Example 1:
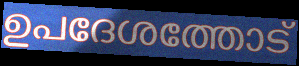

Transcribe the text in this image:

ഉപദേശത്തോട്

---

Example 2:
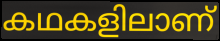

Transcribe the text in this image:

കഥകളിലാണ്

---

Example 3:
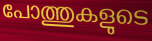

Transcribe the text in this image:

പോത്തുകളുടെ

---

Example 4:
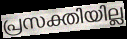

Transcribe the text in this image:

പ്രസക്തിയില്ല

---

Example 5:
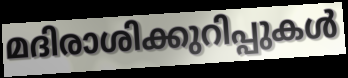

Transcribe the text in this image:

മദിരാശിക്കുറിപ്പുകൾ